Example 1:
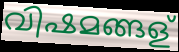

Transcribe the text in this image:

വിഷമങ്ങള്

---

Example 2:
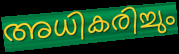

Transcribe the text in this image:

അധികരിച്ചും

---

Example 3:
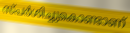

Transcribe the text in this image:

സ്പർശിച്ചുകൊണ്ടാണ്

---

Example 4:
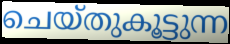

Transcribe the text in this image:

ചെയ്തുകൂട്ടുന്ന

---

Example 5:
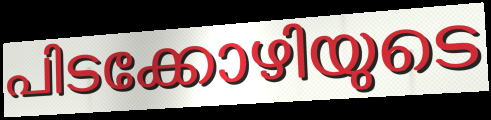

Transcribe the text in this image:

പിടക്കോഴിയുടെ